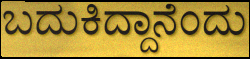
ಬದುಕಿದ್ದಾನೆಂದು